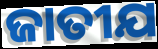
ଜାତୀଯ